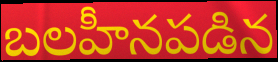
బలహీనపడిన